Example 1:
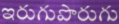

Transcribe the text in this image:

ఇరుగుపొరుగు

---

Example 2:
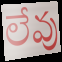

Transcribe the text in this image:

లేవు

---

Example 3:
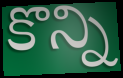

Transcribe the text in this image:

కొన్ని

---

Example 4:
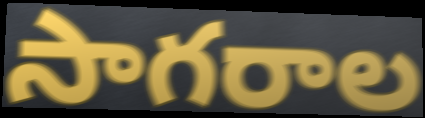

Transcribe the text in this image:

సాగరాల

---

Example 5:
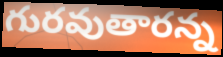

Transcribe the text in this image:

గురవుతారన్న